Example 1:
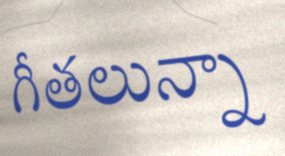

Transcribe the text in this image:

గీతలున్నా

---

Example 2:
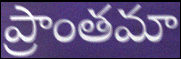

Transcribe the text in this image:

ప్రాంతమా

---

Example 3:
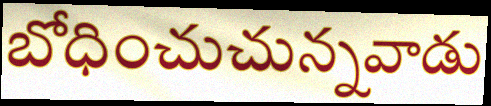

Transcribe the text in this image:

బోధించుచున్నవాడు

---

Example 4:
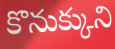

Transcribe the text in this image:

కొనుక్కుని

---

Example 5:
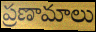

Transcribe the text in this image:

ప్రణామాలు